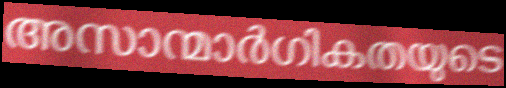
അസാന്മാർഗികതയുടെ